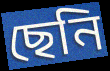
ছেনি